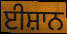
ਈਸ਼ਾਨ